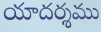
యాదర్శము